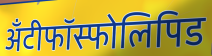
अँटीफॉस्फोलिपिड